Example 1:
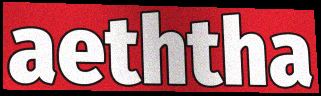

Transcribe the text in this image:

aeththa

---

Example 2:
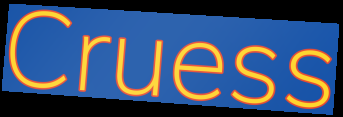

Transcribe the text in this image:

Cruess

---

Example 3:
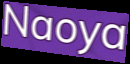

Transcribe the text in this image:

Naoya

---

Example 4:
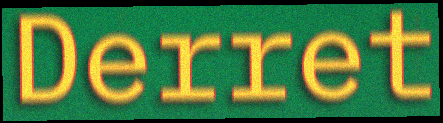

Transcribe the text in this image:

Derret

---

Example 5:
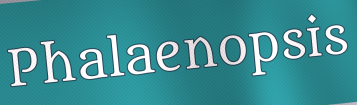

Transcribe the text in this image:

Phalaenopsis